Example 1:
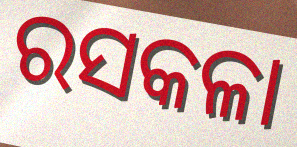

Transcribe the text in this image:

ରସକଳା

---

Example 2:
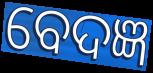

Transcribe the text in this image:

ବେଦଜ୍ଞ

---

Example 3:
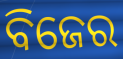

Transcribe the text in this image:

ବିଜେର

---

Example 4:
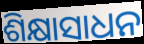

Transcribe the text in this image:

ଶିକ୍ଷାସାଧନ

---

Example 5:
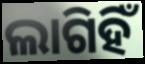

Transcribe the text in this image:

ଲାଗିହିଁ